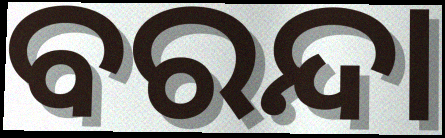
ବରନ୍ଦା